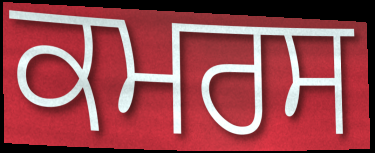
ਕਮਰਸ